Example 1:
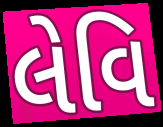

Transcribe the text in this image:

લેવિ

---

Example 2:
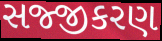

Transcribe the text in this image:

સજ્જીકરણ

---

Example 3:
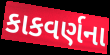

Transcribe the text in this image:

કાકવર્ણના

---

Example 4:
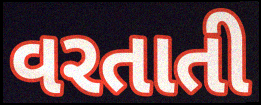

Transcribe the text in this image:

વરતાતી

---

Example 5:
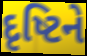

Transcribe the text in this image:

દૃષ્ટિને